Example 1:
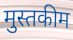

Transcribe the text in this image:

मुस्तकीम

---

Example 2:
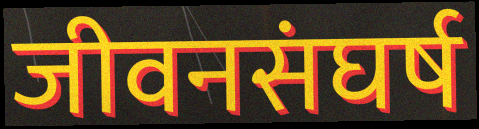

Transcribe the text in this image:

जीवनसंघर्ष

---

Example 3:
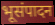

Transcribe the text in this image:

भूसंपादन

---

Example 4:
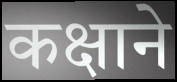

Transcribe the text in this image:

कक्षाने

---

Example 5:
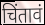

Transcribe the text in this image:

चिंतावं